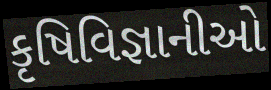
કૃષિવિજ્ઞાનીઓ